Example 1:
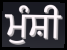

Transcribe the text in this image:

ਮੁੰਸ਼ੀ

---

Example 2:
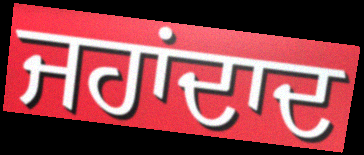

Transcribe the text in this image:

ਜਹਾਂਦਾਦ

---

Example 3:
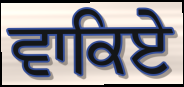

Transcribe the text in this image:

ਵਾਕਿਏ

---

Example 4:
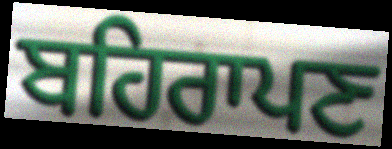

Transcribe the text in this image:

ਬਹਿਰਾਪਣ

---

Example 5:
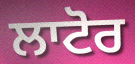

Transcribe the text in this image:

ਲਾਟੋਰ